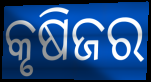
କୃଷିଜର